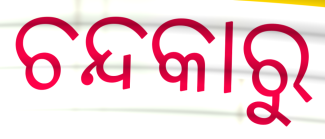
ଚନ୍ଦକାରୁ